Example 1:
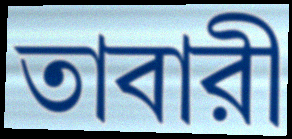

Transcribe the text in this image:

তাবারী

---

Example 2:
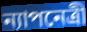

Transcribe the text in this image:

ন্যাপনেত্রী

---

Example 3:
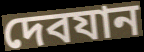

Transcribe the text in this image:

দেবযান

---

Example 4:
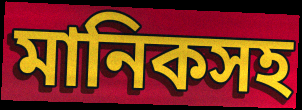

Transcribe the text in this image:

মানিকসহ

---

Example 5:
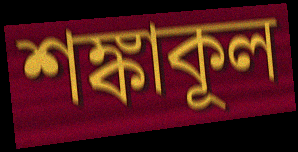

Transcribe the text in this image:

শঙ্কাকূল